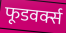
फूडवर्क्स